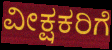
ವೀಕ್ಷಕರಿಗೆ